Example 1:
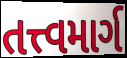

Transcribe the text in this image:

તત્ત્વમાર્ગ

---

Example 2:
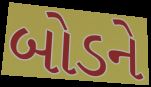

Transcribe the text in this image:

બોડને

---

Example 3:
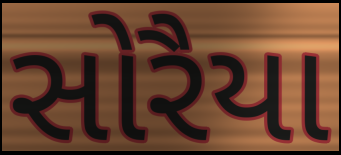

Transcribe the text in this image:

સોરૈયા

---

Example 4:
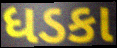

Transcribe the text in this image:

ધડકા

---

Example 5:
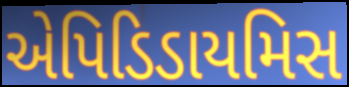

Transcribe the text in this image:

એપિડિડાયમિસ